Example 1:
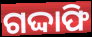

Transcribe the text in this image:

ଗଦ୍ଦାଫି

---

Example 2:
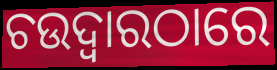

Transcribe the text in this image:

ଚଉଦ୍ଵାରଠାରେ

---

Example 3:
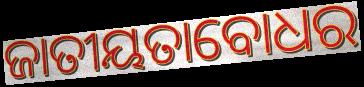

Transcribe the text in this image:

ଜାତୀୟତାବୋଧର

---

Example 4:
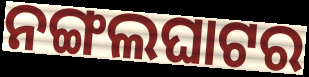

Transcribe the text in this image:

ନଙ୍ଗଲଘାଟର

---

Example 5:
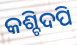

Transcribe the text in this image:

କଶ୍ଚିଦପି